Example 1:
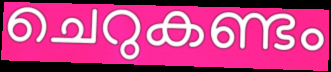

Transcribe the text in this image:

ചെറുകണ്ടം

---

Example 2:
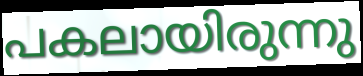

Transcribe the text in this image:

പകലായിരുന്നു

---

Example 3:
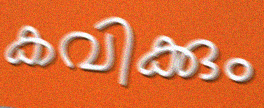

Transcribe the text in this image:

കവിക്കും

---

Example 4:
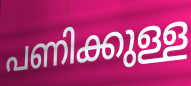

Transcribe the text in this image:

പണിക്കുള്ള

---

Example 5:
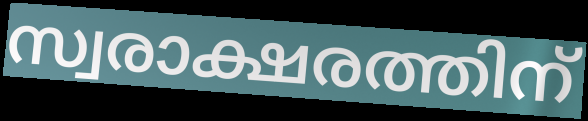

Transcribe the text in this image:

സ്വരാക്ഷരത്തിന്